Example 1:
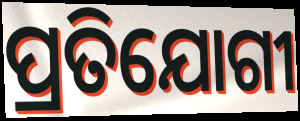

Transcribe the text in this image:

ପ୍ରତିଯୋଗୀ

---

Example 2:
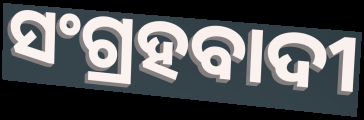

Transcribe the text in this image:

ସଂଗ୍ରହବାଦୀ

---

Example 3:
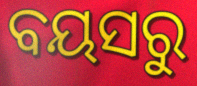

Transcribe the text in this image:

ବୟସରୁ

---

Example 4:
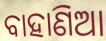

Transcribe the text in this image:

ବାହାଣିଆ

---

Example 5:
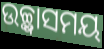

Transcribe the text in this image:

ଉଚ୍ଛ୍ୱାସମୟ